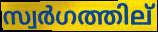
സ്വർഗത്തില്